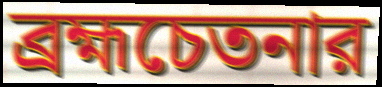
ব্রহ্মচেতনার